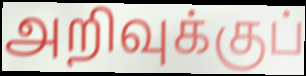
அறிவுக்குப்